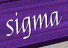
sigma